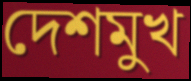
দেশমুখ